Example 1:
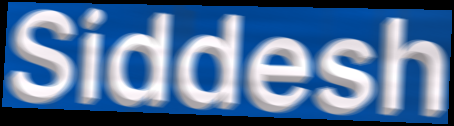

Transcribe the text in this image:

Siddesh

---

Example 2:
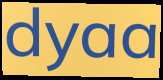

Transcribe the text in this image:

dyaa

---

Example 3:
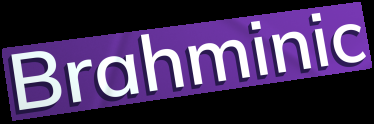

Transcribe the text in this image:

Brahminic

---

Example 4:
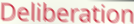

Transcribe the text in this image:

Deliberation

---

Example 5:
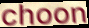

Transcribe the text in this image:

choon